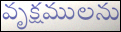
వృక్షములను